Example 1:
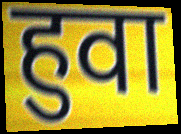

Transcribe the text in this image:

हुवा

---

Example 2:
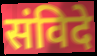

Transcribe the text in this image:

संविदे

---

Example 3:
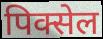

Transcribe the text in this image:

पिक्सेल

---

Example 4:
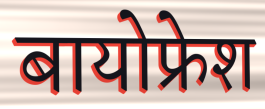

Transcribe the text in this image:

बायोफ्रेश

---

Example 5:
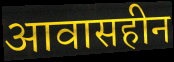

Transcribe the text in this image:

आवासहीन